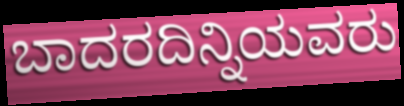
ಬಾದರದಿನ್ನಿಯವರು